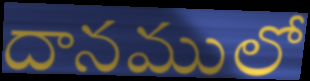
దానములో